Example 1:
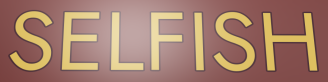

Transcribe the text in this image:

SELFISH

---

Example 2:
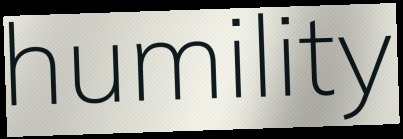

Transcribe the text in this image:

humility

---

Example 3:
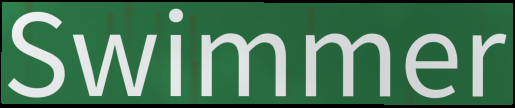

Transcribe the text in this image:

Swimmer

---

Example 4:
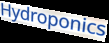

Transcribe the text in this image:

Hydroponics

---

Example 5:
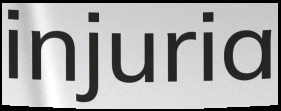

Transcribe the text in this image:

injuria